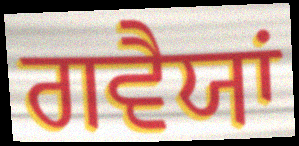
ਗਵੈਯਾਂ